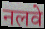
नलवे